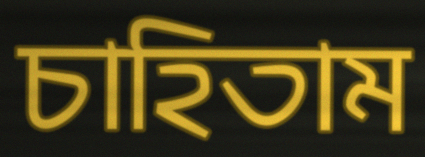
চাহিতাম